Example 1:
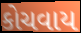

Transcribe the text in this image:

કોચવાય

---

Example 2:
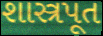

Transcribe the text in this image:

શાસ્ત્રપૂત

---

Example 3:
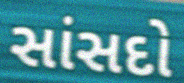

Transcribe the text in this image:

સાંસદો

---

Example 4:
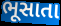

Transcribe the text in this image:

ભૂસાતા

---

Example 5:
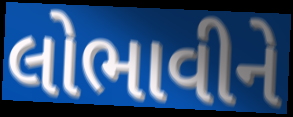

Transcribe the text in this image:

લોભાવીને